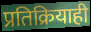
प्रतिक्रियाही